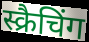
स्क्रैचिंग